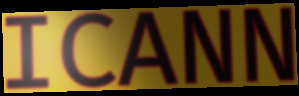
ICANN